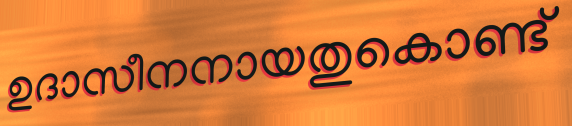
ഉദാസീനനായതുകൊണ്ട്